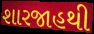
શારજાહથી